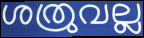
ശത്രുവല്ല